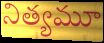
నిత్యమూ